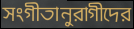
সংগীতানুরাগীদের